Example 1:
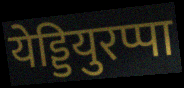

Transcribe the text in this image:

येड्डियुरप्पा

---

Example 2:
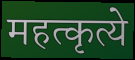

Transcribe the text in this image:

महत्कृत्ये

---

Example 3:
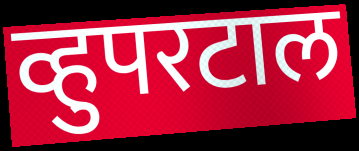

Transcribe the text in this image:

व्हुपरटाल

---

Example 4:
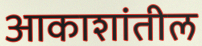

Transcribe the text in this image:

आकाशांतील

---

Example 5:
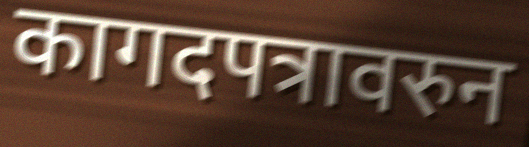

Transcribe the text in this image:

कागदपत्रावरुन